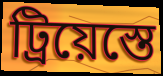
ট্ৰিয়েস্তে